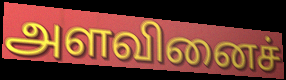
அளவினைச்